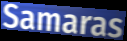
Samaras